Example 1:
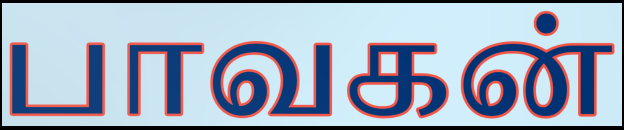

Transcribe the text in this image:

பாவகன்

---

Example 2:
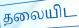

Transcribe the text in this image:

தலையிட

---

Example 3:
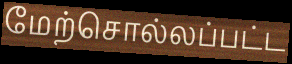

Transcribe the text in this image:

மேற்சொல்லப்பட்ட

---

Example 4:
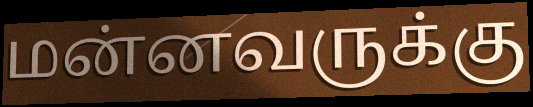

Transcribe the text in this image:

மன்னவருக்கு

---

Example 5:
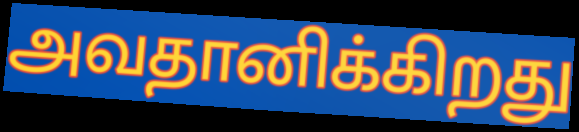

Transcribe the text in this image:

அவதானிக்கிறது